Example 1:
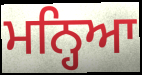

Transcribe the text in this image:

ਮਨ੍ਹਿਆ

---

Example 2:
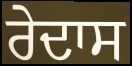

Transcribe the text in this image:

ਰੇਦਾਸ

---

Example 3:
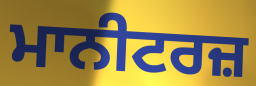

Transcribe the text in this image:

ਮਾਨੀਟਰਜ਼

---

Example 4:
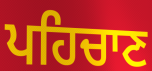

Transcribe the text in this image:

ਪਹਿਚਾਣ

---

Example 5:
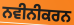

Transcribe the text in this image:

ਨਵੀਨੀਕਰਨ